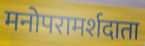
मनोपरामर्शदाता